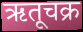
ऋतूचक्र